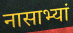
नासाभ्यां